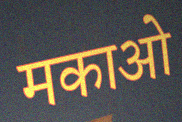
मकाओ